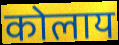
कोलाय